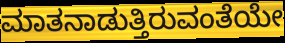
ಮಾತನಾಡುತ್ತಿರುವಂತೆಯೇ